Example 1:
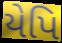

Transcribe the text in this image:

યેપિ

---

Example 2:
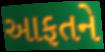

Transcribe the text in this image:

આફતને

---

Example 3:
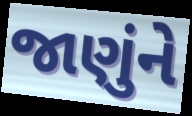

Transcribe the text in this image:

જાણુંને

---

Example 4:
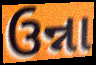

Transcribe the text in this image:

ઉન્ના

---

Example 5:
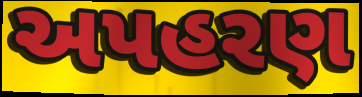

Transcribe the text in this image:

અપહરણ